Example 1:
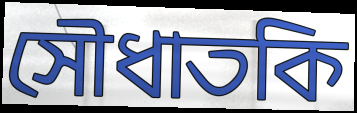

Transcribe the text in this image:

সৌধাতকি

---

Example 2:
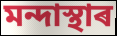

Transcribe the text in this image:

মন্দাস্থাৰ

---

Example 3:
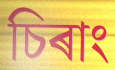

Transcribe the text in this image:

চিৰাং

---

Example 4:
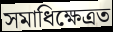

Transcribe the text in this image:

সমাধিক্ষেত্ৰত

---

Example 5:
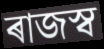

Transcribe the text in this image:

ৰাজস্ব